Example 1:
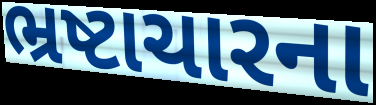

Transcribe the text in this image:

ભ્રષ્ટાચારના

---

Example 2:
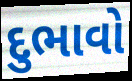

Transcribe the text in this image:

દુભાવો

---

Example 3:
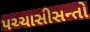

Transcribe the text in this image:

પચ્ચાસીસન્તો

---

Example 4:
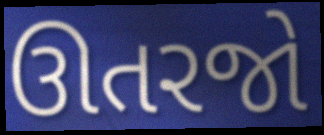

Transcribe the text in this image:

ઊતરજો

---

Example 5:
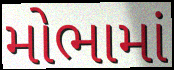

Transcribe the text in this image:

મોભામાં